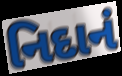
નિદાનં